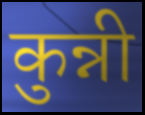
कुन्नी